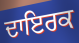
ਦਾਇਰਕ